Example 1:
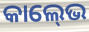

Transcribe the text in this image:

କାଲ୍‍ଭେ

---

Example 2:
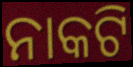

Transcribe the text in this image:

ନାକଟି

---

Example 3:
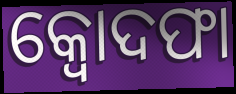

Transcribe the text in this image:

କ୍ବୋଦଫା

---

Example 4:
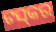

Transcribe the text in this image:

ଟସ୍‍କର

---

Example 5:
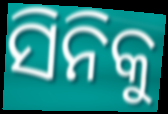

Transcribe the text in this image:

ସିନିକୁ